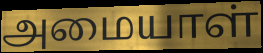
அமையாள்